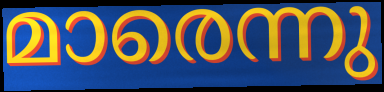
മാരെന്നു